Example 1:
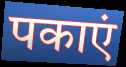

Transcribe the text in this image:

पकाएं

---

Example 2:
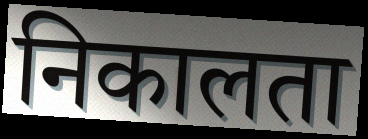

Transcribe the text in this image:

निकालता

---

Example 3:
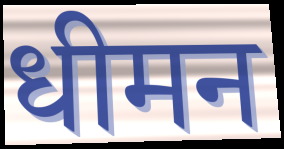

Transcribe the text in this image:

धीमन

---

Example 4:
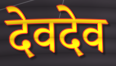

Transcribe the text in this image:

देवदेव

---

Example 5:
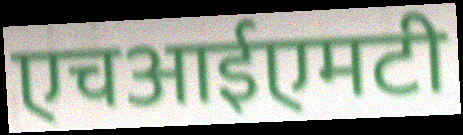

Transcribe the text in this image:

एचआईएमटी